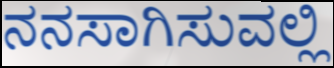
ನನಸಾಗಿಸುವಲ್ಲಿ